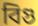
বিগু